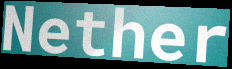
Nether